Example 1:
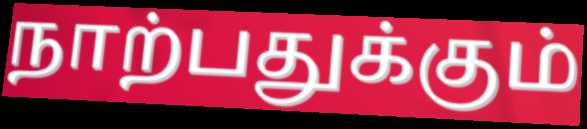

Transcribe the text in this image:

நாற்பதுக்கும்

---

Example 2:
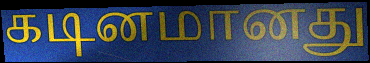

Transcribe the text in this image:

கடினமானது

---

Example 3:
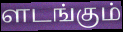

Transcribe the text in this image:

ளடங்கும்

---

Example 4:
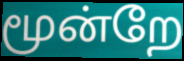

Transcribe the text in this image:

மூன்றே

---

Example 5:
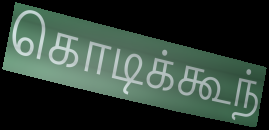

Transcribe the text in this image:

கொடிக்கூந்